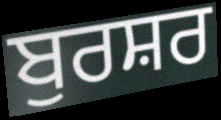
ਬੁਰਸ਼ਰ